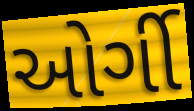
ઓર્ગી